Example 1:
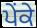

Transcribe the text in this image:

ਪੇਂਕੇ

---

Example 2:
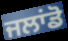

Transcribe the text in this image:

ਜਲਾਂਡੋ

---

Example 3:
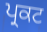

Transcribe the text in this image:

ਪ੍ਰਕਟ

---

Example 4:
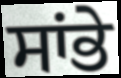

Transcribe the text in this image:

ਸਾਂਭੇ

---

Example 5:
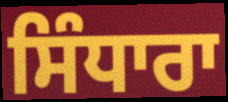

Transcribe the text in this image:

ਸਿੰਧਾਰਾ